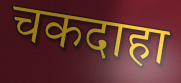
चकदाहा